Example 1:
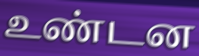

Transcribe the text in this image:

உண்டன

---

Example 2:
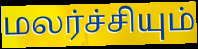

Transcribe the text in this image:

மலர்ச்சியும்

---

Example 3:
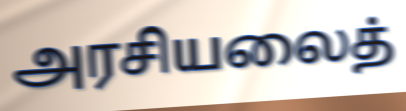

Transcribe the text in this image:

அரசியலைத்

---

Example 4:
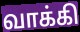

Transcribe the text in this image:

வாக்கி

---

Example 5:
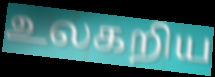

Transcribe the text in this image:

உலகறிய